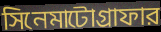
সিনেমাটোগ্রাফার